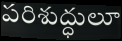
పరిశుద్ధులూ